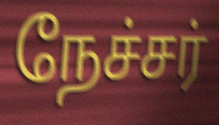
நேச்சர்